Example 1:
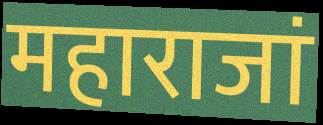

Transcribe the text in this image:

महाराजां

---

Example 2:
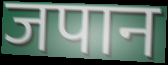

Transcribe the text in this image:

जपान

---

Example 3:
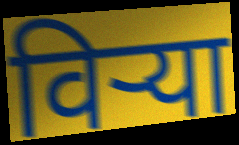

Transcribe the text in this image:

विऱ्या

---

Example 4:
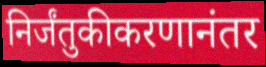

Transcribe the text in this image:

निर्जंतुकीकरणानंतर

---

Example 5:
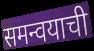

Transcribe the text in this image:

समन्वयाची